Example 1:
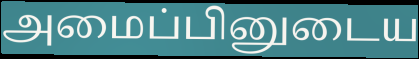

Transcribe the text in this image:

அமைப்பினுடைய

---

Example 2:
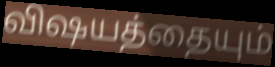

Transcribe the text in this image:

விஷயத்தையும்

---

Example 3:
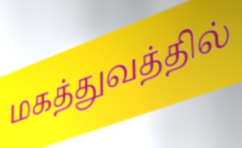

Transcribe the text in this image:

மகத்துவத்தில்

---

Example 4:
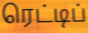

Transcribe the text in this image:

ரெட்டிப்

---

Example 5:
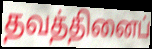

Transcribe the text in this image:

தவத்தினைப்